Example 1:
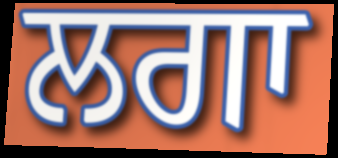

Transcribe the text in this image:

ਲਗਾ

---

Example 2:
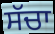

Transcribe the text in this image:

ਸੱਚਾ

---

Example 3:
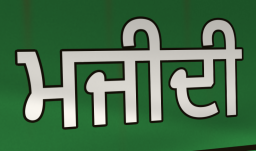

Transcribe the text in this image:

ਮਜੀਦੀ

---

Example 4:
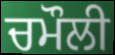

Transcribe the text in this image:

ਚਮੌਲੀ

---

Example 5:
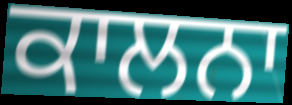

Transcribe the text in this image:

ਕਾਲਨਾ